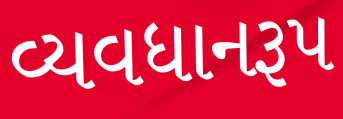
વ્યવધાનરૂપ